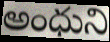
అంధుని